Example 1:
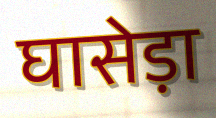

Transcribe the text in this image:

घासेड़ा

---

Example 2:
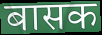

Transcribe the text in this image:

बासक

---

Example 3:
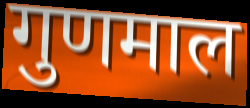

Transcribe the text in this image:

गुणमाल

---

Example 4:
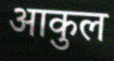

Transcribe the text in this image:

आकुल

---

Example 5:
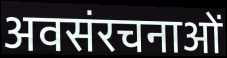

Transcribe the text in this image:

अवसंरचनाओं